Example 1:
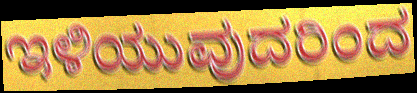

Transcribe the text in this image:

ಇಳಿಯುವುದರಿಂದ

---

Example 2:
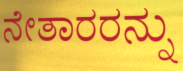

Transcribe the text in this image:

ನೇತಾರರನ್ನು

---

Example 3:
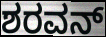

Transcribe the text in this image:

ಶರವನ್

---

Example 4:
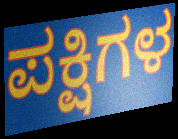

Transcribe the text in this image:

ಪಕ್ಷಿಗಳ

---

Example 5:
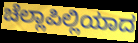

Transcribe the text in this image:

ಚೆಲ್ಲಾಪಿಲ್ಲಿಯಾದ